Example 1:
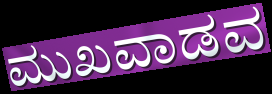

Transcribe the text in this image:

ಮುಖವಾಡವ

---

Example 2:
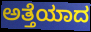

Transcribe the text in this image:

ಅತ್ತೆಯಾದ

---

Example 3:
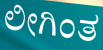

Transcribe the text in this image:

ಲೀಗಿಂತ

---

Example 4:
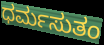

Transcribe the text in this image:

ಧರ್ಮಸುತಂ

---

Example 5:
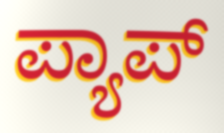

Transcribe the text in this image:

ಪ್ಯಾಪ್